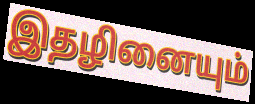
இதழினையும்